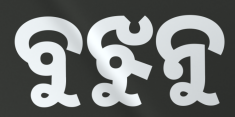
ବୁଝୁନୁ